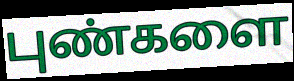
புண்களை